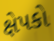
ક્ષેપકો